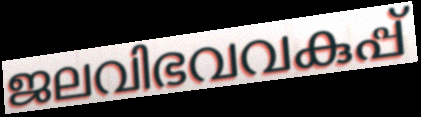
ജലവിഭവവകുപ്പ്